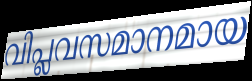
വിപ്ലവസമാനമായ